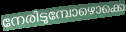
നേരിടുമ്പോഴൊക്കെ